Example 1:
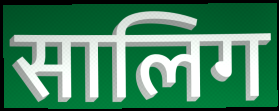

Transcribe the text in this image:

सालिग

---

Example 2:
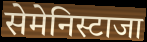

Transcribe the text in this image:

सेमेनिस्टाजा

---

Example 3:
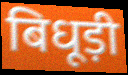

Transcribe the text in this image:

बिधूड़ी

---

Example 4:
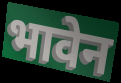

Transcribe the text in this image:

भावेन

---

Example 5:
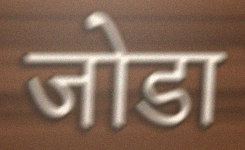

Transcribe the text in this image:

जोडा